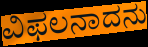
ವಿಫಲನಾದನು